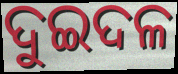
ଦୁଇଦଳ